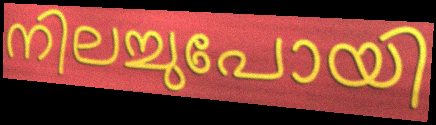
നിലച്ചുപോയി